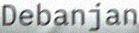
Debanjan